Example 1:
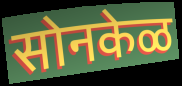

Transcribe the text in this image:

सोनकेळ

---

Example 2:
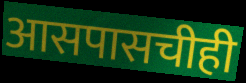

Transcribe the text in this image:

आसपासचीही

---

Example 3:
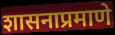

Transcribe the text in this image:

शासनाप्रमाणे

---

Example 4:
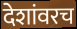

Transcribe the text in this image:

देशांवरच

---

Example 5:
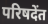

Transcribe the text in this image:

परिषदेंत